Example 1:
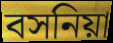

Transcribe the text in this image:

বসনিয়া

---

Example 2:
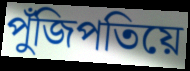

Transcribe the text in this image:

পুঁজিপতিয়ে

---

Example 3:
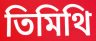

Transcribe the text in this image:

তিমিথি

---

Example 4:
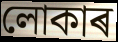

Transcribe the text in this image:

লোকাৰ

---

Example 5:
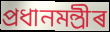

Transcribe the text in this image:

প্ৰধানমন্ত্ৰীৰ